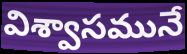
విశ్వాసమునే